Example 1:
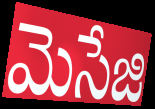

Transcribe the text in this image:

మెసేజి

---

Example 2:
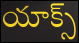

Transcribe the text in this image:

యాక్స్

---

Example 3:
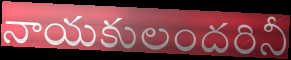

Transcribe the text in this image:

నాయకులందరినీ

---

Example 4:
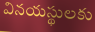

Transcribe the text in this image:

వినయస్థులకు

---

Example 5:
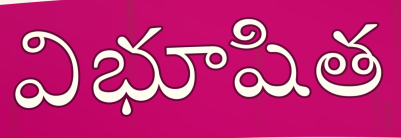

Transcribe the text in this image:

విభూషిత